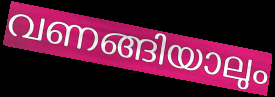
വണങ്ങിയാലും